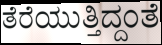
ತೆರೆಯುತ್ತಿದ್ದಂತೆ